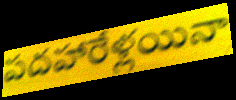
పదహారేళ్లయినా